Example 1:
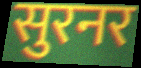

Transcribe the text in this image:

सुरनर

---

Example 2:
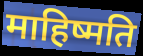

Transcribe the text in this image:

माहिष्मति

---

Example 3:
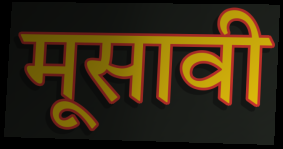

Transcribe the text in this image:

मूसावी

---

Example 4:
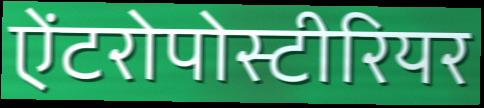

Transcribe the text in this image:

ऐंटरोपोस्टीरियर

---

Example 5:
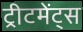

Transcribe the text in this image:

ट्रीटमेंट्स